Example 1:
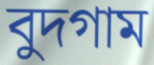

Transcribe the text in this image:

বুদগাম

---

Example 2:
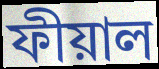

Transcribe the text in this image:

ফীয়াল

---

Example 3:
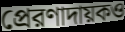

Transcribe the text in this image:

প্রেরণাদায়কও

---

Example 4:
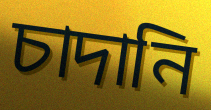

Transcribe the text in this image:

চাদানি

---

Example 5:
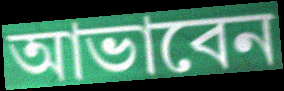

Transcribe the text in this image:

আভাবেন